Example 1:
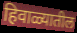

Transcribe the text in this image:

हिवाळ्यातील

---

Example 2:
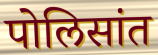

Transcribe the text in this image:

पोलिसांत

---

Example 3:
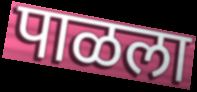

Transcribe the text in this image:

पाळला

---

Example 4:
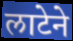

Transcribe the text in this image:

लाटेने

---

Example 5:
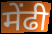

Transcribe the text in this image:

मेंढी